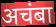
अचंबा